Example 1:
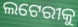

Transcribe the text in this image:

ଲଟେରୀକୁ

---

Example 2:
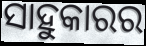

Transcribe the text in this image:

ସାହୁକାରର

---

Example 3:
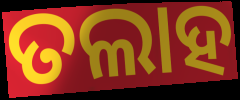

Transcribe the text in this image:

ତଲାହ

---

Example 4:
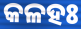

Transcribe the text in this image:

କଳହଃ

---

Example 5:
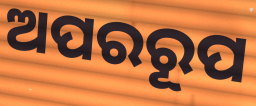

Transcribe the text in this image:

ଅପରରୂପ